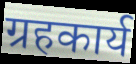
ग्रहकार्य